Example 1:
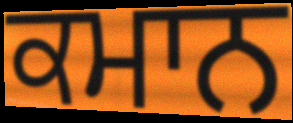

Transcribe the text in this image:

ਕਮਾਨ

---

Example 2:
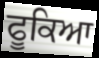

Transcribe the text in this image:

ਫੂਕਿਆ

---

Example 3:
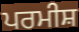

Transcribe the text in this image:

ਪਰਮੀਸ਼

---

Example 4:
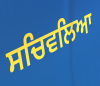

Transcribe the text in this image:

ਸਚਿਵਲਿਆ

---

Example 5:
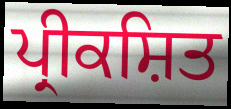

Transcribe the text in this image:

ਪ੍ਰੀਕਸ਼ਿਤ